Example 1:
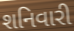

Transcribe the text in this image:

શનિવારી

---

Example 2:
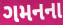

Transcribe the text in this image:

ગમનના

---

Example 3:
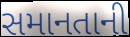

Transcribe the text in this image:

સમાનતાની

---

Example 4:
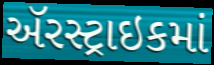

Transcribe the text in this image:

ઍરસ્ટ્રાઇકમાં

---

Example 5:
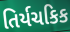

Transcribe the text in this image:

તિર્યચકિક